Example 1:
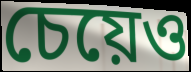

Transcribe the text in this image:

চেয়েও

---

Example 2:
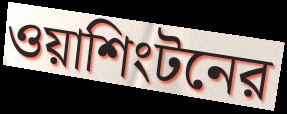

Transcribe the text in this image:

ওয়াশিংটনের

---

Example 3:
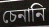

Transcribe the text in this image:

চেনানি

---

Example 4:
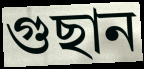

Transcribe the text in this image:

গুছান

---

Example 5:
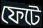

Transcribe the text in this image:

ফেটে